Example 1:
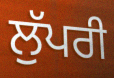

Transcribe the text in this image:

ਲੁੱਪਰੀ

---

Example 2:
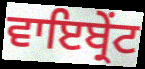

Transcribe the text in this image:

ਵਾਇਬ੍ਰੇਂਟ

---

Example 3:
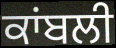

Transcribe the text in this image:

ਕਾਂਬਲੀ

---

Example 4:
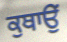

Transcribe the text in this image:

ਕੁਥਾਉਂ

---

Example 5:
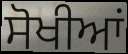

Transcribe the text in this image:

ਸੋਖੀਆਂ